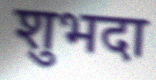
शुभदा